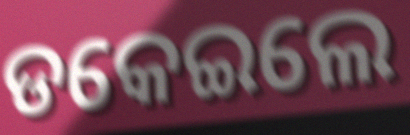
ଡକେଇଲେ